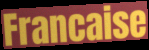
Francaise